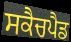
ਸਕੈਚਪੈਡ